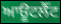
ਆਊਟਲੈੱਟ